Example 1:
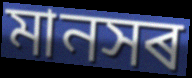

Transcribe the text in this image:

মানসৰ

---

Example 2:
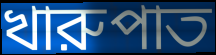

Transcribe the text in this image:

খাৰুপাত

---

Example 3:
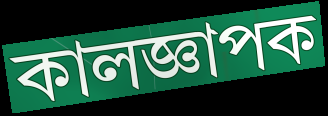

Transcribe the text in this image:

কালজ্ঞাপক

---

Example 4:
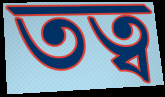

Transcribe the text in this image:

তত্ব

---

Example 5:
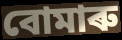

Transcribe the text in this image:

বোমাৰু